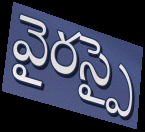
వైరస్పై